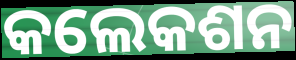
କଲେକଶନ